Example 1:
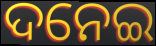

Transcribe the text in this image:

ଦନେଇ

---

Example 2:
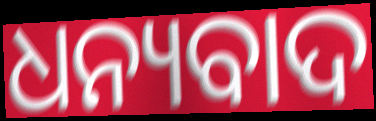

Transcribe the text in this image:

ଧନ୍ୟବାଦ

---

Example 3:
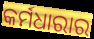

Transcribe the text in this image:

କର୍ମଧାରାର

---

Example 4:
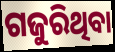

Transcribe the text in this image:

ଗଜୁରିଥିବା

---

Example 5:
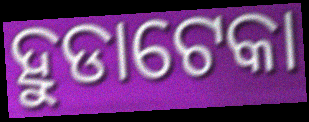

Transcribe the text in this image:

ହୁଡାଟେକା